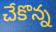
చేకొన్న